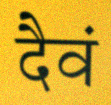
दैवं